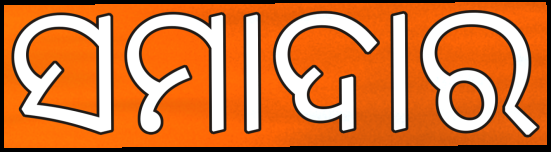
ସମାଦାର